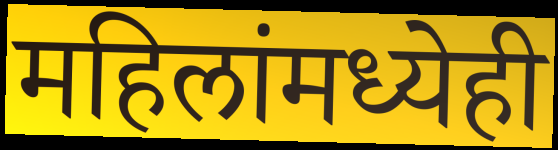
महिलांमध्येही